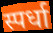
स्पर्धा